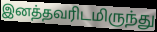
இனத்தவரிடமிருந்து